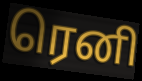
ரெனி